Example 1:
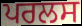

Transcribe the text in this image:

ਪਰਲਸ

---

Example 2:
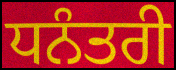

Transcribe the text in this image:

ਧਨੰਤਰੀ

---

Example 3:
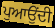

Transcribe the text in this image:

ਪੁਆਉਂਦੀ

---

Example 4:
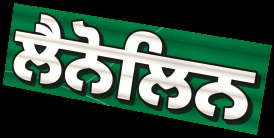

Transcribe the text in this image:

ਲੈਨੋਲਿਨ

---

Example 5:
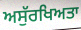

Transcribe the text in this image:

ਅਸੁੱਰਖਿਅਤਾ